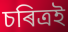
চৰিত্ৰই